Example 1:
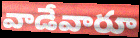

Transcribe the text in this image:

వాడేవారూ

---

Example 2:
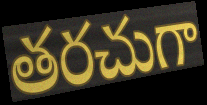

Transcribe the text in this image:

తరచుగా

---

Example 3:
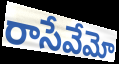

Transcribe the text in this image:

రాసేవేమో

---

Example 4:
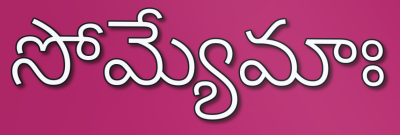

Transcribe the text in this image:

సోమ్యేమాః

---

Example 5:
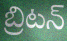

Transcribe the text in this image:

బ్రిటన్